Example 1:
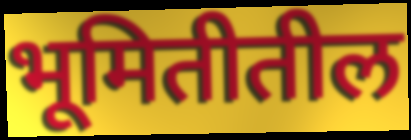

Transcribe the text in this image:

भूमितीतील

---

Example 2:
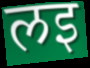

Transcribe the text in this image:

लइ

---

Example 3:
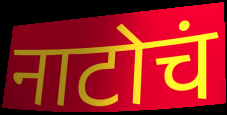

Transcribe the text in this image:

नाटोचं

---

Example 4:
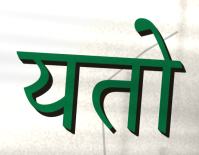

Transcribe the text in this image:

यतो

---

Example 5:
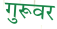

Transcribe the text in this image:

गुरूवर